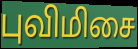
புவிமிசை